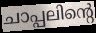
ചാപ്പലിന്റെ